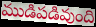
ముడిపడివుంది